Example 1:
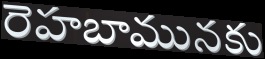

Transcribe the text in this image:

రెహబామునకు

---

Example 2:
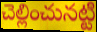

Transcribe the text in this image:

చెల్లించునట్టి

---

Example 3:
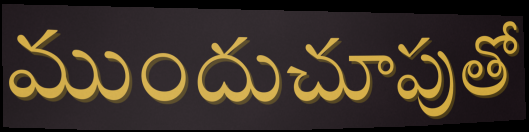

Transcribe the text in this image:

ముందుచూపుతో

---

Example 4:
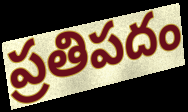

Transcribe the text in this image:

ప్రతిపదం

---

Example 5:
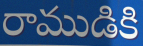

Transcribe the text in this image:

రాముడికి